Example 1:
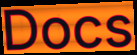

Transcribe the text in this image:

Docs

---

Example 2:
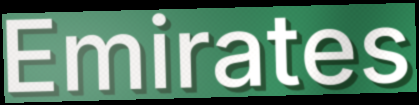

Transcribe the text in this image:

Emirates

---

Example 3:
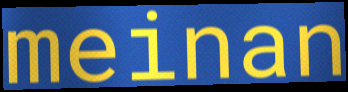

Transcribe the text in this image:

meinan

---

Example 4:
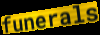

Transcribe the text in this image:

funerals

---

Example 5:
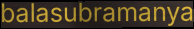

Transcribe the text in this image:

balasubramanya